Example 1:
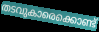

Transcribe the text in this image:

തടവുകാരെക്കൊണ്ട്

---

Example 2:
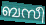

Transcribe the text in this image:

ബസീ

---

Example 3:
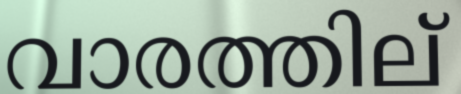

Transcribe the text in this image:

വാരത്തില്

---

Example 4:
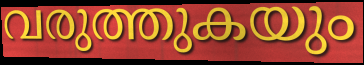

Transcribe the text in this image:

വരുത്തുകയും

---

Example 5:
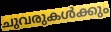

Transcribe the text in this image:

ചുവരുകൾക്കും